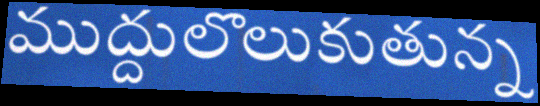
ముద్దులొలుకుతున్న